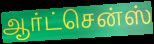
ஆர்ட்சென்ஸ்